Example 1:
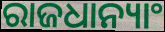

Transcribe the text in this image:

ରାଜଧାନ୍ୟାଂ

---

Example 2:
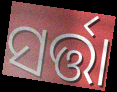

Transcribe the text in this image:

ସର୍ତ୍ତା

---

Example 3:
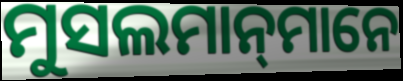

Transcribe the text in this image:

ମୁସଲମାନ୍‌ମାନେ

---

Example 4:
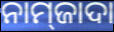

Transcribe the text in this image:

ନାମ୍‍ଜାଦା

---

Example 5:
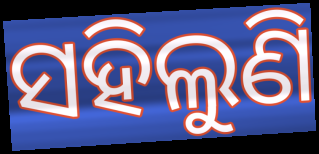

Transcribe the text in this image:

ସହିଲୁଣି